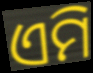
ଏମି